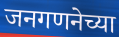
जनगणनेच्या